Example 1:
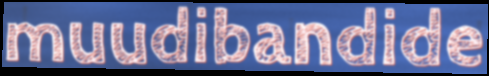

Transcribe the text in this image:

muudibandide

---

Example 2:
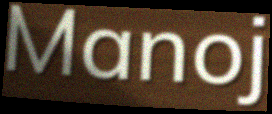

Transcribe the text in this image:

Manoj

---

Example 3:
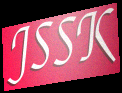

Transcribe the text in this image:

JSSK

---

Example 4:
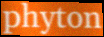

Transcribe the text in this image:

phyton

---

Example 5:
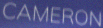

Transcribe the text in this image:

CAMERON